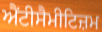
ਐਂਟੀਸੈਮੀਟਿਜ਼ਮ